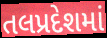
તલપ્રદેશમાં